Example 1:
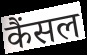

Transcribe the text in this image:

कैंसल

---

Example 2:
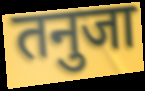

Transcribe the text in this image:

तनुजा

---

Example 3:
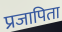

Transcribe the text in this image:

प्रजापिता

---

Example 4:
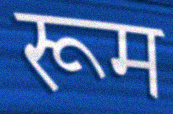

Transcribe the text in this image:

रूम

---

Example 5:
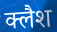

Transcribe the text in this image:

क्लैश